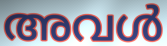
അവൾ